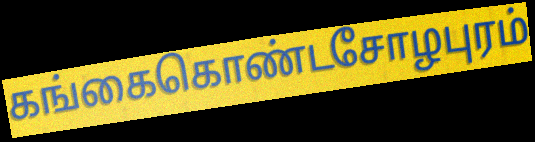
கங்கைகொண்டசோழபுரம்